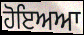
ਹੋਇਅਆ